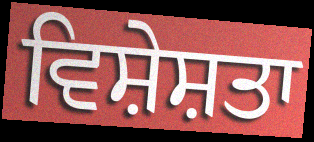
ਵਿਸ਼ੇਸ਼ਤਾ